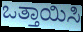
ಒತ್ತಾಯಿಸಿ